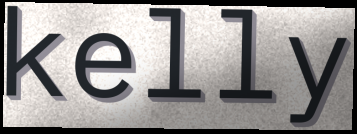
kelly